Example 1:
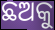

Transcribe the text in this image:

ଛଅକୁ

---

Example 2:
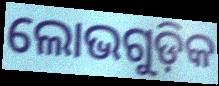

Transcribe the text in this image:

ଲୋଭଗୁଡ଼ିକ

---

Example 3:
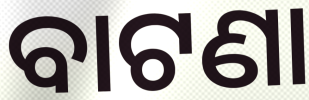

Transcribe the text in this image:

ବାଟଣା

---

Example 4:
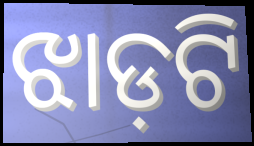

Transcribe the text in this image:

ଝାଡ଼ଟି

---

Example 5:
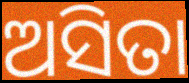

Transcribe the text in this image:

ଅସିତା